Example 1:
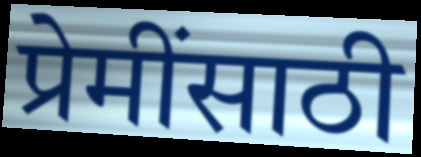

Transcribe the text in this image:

प्रेमींसाठी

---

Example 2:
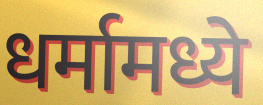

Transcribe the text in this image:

धर्मामध्ये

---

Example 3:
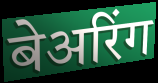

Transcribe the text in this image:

बेअरिंग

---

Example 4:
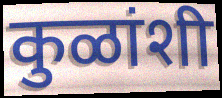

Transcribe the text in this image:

कुळांशी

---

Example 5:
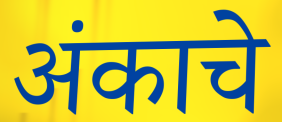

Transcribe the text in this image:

अंकाचे